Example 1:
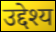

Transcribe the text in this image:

उद्देश्य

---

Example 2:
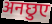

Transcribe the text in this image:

अनछुए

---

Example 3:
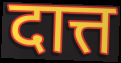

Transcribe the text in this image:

दात्त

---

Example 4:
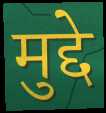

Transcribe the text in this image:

मुद्दे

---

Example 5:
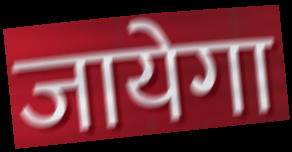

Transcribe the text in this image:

जायेगा